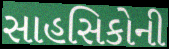
સાહસિકોની